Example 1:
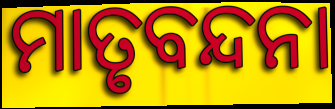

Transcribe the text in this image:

ମାତୃବନ୍ଦନା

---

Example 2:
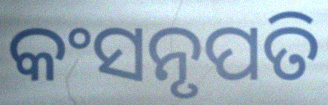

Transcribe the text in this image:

କଂସନୃପତି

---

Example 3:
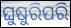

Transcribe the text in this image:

ଘୁଷୁରିପରି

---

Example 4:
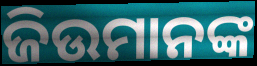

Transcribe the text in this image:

ଜିଉମାନଙ୍କ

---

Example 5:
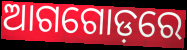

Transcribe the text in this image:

ଆଗଗୋଡ଼ରେ